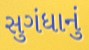
સુગંધાનું